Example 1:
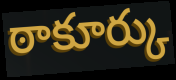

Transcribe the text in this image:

ఠాకూర్కు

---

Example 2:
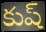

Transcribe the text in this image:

కుష్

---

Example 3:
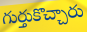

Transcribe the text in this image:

గుర్తుకొచ్చారు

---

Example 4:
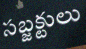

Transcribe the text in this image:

సబ్జక్టులు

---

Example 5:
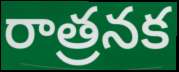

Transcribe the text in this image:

రాత్రనక